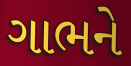
ગાભને